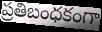
ప్రతిబంధకంగా